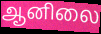
ஆனிலை